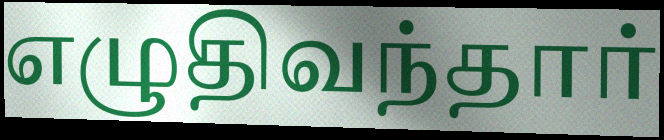
எழுதிவந்தார்